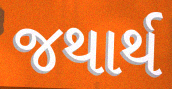
જથાર્થ